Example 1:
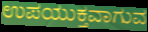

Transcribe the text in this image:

ಉಪಯುಕ್ತವಾಗುವ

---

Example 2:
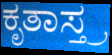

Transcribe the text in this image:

ಕೃತಾಸ್ತ್ರ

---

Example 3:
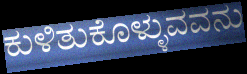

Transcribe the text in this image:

ಕುಳಿತುಕೊಳ್ಳುವವನು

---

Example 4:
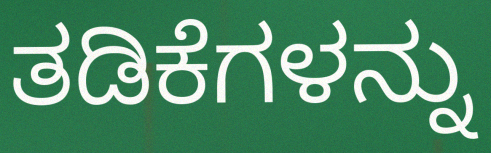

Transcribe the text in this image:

ತಡಿಕೆಗಳನ್ನು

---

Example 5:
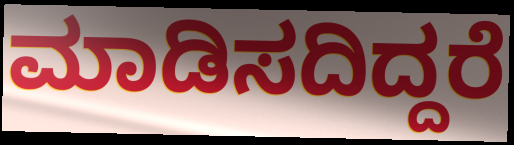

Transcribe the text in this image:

ಮಾಡಿಸದಿದ್ದರೆ